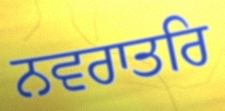
ਨਵਰਾਤਰਿ